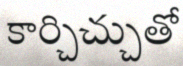
కార్చిచ్చుతో